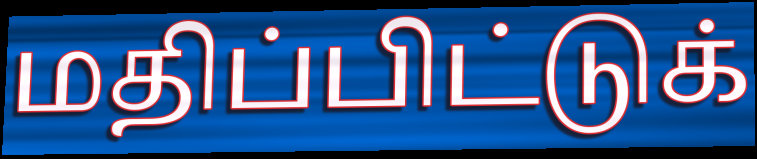
மதிப்பிட்டுக்